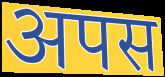
अपस